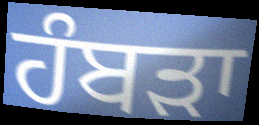
ਹੰਬੜਾ